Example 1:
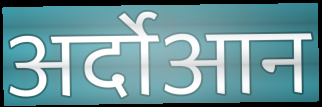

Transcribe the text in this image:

अर्दोआन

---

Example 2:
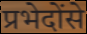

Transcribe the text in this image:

प्रभेदोंसे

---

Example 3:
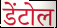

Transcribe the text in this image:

डेंटोल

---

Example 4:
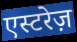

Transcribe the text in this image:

एस्टरेज़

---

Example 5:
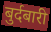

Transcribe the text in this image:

बुर्दबारी